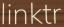
linktr